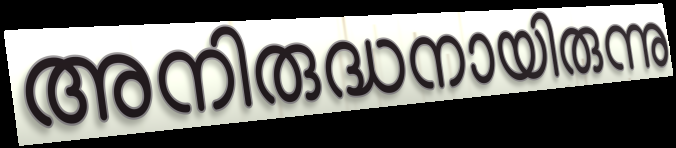
അനിരുദ്ധനായിരുന്നു